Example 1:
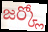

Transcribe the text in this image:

జర్క్లో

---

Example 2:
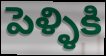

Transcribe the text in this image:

పెళ్ళికి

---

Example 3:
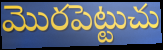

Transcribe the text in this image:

మొరపెట్టుచు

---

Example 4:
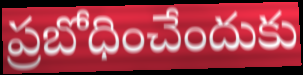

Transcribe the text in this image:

ప్రబోధించేందుకు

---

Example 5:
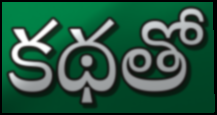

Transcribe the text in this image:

కథతో